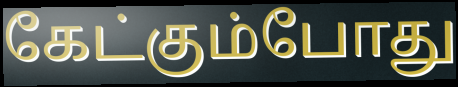
கேட்கும்போது